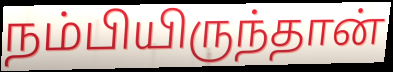
நம்பியிருந்தான்